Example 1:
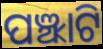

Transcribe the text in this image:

ପଞ୍ଝାଟି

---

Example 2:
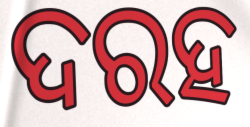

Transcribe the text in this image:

ଦରହ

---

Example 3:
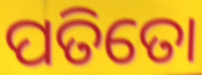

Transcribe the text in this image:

ପତିତୋ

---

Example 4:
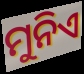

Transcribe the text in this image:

ମୁନିଏ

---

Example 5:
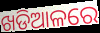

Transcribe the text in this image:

ଖଡିଆଳରେ